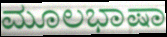
ಮೂಲಭಾಷಾ